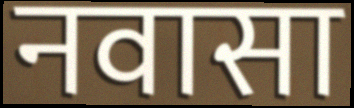
नवासा